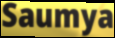
Saumya